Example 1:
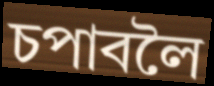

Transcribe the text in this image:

চপাবলৈ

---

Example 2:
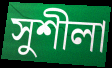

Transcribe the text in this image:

সুশীলা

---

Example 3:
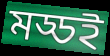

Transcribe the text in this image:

মড্ডই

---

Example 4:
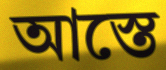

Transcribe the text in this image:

আস্তে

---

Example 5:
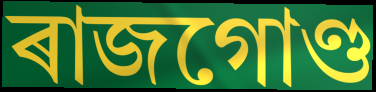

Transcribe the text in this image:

ৰাজগোণ্ড